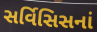
સર્વિસિસનાં